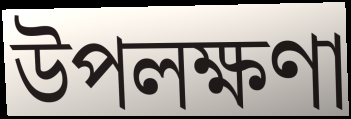
উপলক্ষণা